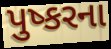
પુષ્કરના